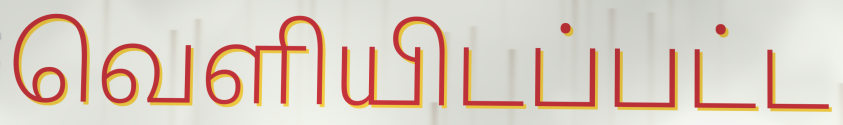
வெளியிடப்பட்ட